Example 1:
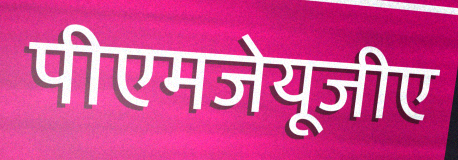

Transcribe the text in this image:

पीएमजेयूजीए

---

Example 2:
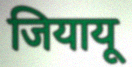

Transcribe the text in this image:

जियायू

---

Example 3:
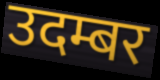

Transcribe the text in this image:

उदम्बर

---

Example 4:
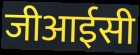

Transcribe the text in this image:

जीआईसी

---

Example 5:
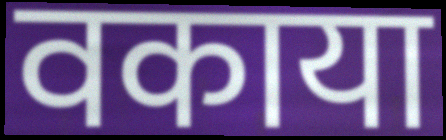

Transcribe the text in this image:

वकाया